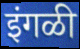
इंगळी